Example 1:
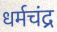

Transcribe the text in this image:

धर्मचंद्र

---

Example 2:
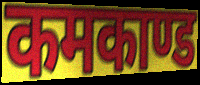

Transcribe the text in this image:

कमकाण्ड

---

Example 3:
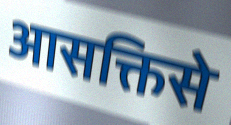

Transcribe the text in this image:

आसक्तिसे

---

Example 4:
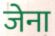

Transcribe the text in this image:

जेना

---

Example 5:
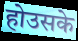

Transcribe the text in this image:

होउसके